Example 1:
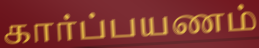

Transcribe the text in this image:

கார்ப்பயணம்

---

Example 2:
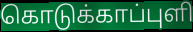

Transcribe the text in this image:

கொடுக்காப்புளி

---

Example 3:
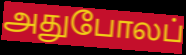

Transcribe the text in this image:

அதுபோலப்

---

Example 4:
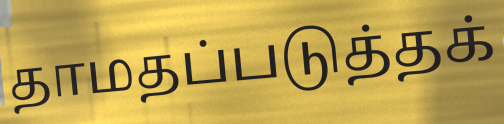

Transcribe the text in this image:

தாமதப்படுத்தக்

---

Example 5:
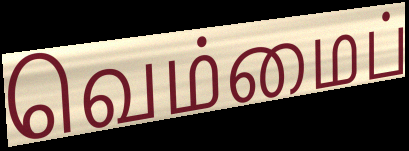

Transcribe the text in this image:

வெம்மைப்